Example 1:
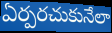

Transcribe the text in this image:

ఏర్పరచుకునేలా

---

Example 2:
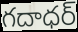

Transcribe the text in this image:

గదాధర్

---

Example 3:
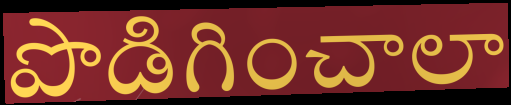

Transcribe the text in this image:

పొడిగించాలా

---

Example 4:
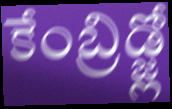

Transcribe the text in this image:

కేంబ్రిడ్జ్లో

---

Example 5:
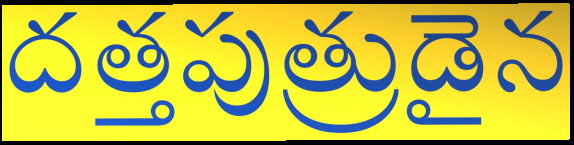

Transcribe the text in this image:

దత్తపుత్రుడైన